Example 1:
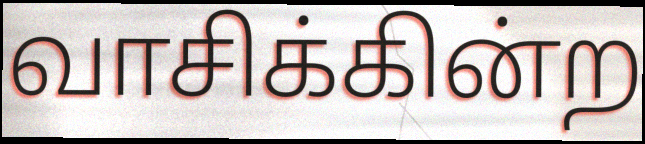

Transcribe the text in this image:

வாசிக்கின்ற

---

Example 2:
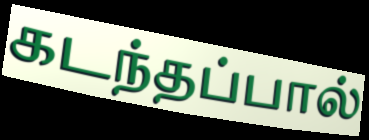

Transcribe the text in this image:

கடந்தப்பால்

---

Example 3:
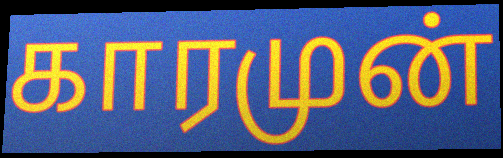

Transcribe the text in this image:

காரமுன்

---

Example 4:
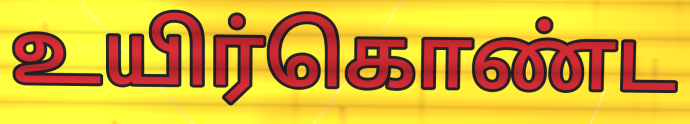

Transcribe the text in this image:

உயிர்கொண்ட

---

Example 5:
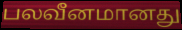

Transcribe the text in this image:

பலவீனமானது